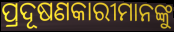
ପ୍ରଦୂଷଣକାରୀମାନଙ୍କୁ